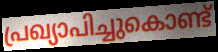
പ്രഖ്യാപിച്ചുകൊണ്ട്